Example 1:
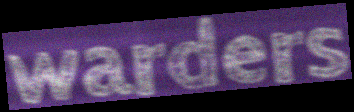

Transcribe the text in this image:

warders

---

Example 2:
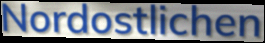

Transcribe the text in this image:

Nordostlichen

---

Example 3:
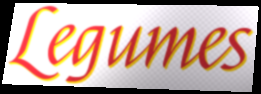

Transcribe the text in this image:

Legumes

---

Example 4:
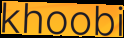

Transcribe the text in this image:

khoobi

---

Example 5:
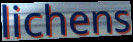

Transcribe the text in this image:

lichens